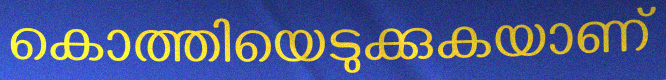
കൊത്തിയെടുക്കുകയാണ്